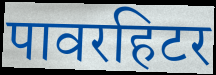
पावरहिटर